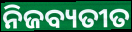
ନିଜବ୍ୟତୀତ